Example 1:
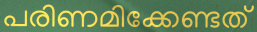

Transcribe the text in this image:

പരിണമിക്കേണ്ടത്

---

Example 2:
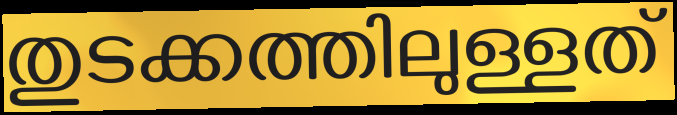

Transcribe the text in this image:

തുടക്കത്തിലുള്ളത്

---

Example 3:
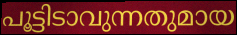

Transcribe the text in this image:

പൂട്ടിടാവുന്നതുമായ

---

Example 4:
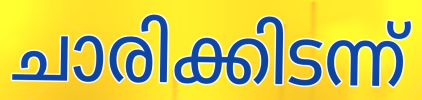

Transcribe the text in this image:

ചാരിക്കിടന്ന്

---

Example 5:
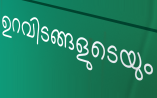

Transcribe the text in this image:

ഉറവിടങ്ങളുടെയും